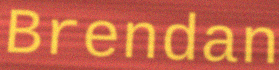
Brendan